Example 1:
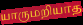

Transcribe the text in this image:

யாருமறியாத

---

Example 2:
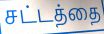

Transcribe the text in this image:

சட்டத்தை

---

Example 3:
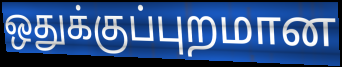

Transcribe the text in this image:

ஒதுக்குப்புறமான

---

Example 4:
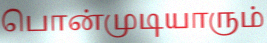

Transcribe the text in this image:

பொன்முடியாரும்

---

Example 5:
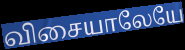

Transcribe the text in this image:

விசையாலேயே